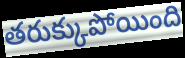
తరుక్కుపోయింది